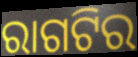
ରାଗଟିର